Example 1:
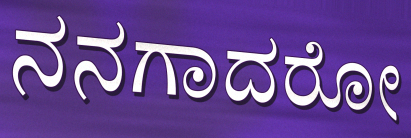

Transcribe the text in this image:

ನನಗಾದರೋ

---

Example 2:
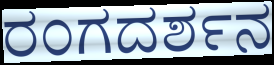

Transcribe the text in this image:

ರಂಗದರ್ಶನ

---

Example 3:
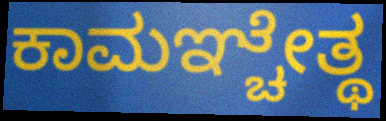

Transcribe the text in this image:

ಕಾಮಞ್ಚೇತ್ಥ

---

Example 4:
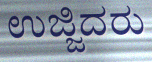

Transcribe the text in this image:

ಉಜ್ಜಿದರು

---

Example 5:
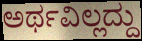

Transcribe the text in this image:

ಅರ್ಥವಿಲ್ಲದ್ದು